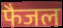
फैजल